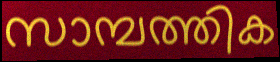
സാമ്പത്തിക